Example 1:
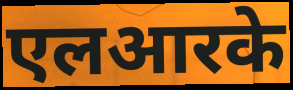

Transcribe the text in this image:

एलआरके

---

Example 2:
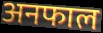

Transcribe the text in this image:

अनफाल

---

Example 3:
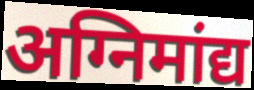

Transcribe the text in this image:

अग्निमांद्य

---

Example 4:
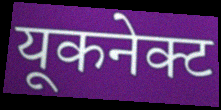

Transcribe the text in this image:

यूकनेक्ट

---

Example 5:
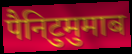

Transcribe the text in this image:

पैनिटुमुमाब